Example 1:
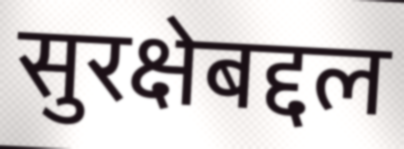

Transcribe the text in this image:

सुरक्षेबद्दल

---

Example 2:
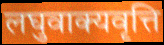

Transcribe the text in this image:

लघुवाक्यवृत्ति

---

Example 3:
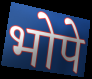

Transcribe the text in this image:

भोपे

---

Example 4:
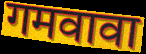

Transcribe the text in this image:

गमवावा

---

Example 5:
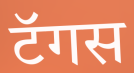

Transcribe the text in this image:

टॅगस